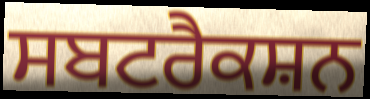
ਸਬਟਰੈਕਸ਼ਨ